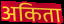
अकिता